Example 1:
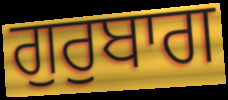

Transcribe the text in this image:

ਗੁਰੁਬਾਗ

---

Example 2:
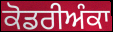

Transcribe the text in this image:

ਕੋਡਰੀਅੰਕਾ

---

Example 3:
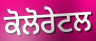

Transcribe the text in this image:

ਕੋਲੋਰੇਟਲ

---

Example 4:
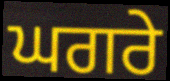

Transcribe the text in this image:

ਘਗਰੇ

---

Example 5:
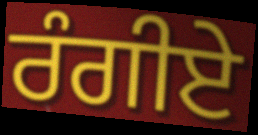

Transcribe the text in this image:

ਰੰਗੀਏ